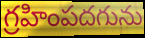
గ్రహింపదగును